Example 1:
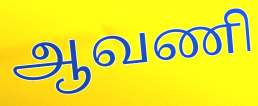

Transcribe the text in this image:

ஆவணி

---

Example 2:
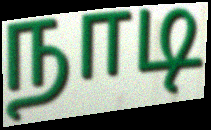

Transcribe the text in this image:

நாடி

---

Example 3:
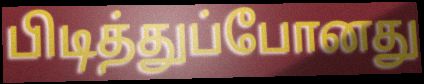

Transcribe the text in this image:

பிடித்துப்போனது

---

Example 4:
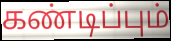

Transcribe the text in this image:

கண்டிப்பும்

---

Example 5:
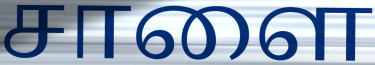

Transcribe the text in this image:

சாளை